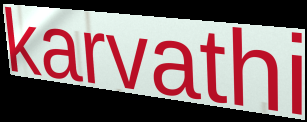
karvathi